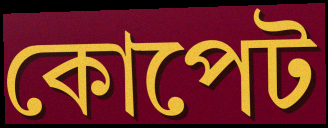
কোপেট